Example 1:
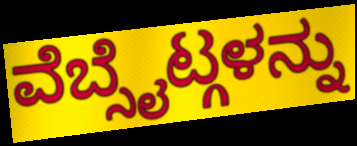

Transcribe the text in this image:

ವೆಬ್ಸೈಟ್ಗಳನ್ನು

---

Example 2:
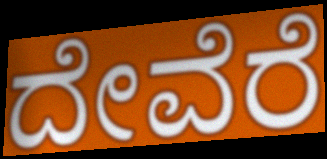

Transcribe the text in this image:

ದೇವೆರೆ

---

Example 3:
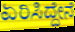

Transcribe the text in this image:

ಏರಿಸಿದ್ದೇನೆ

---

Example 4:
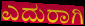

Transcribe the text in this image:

ಎದುರಾಗಿ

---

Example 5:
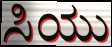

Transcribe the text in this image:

ಸಿಯು